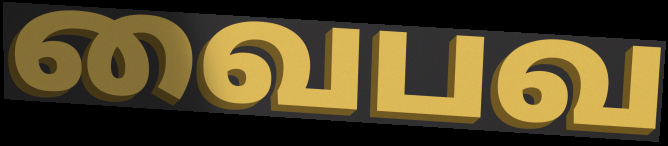
வைபவ